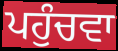
ਪਹੁੰਚਵਾ